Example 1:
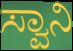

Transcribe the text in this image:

ಸ್ವಾನಿ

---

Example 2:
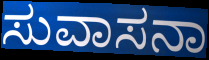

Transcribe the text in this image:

ಸುವಾಸನಾ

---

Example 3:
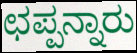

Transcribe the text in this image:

ಛಪ್ಪನ್ನಾರು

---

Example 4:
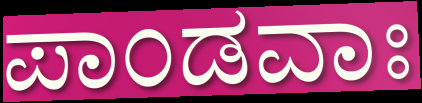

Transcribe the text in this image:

ಪಾಂಡವಾಃ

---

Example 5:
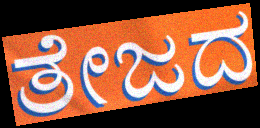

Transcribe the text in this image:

ತೇಜದ